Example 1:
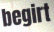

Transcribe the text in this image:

begirt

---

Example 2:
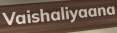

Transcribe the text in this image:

Vaishaliyaana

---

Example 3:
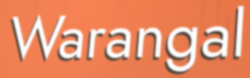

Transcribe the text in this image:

Warangal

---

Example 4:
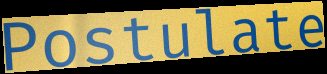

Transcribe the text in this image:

Postulate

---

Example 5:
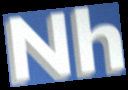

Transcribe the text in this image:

Nh